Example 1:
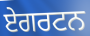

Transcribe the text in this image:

ਏਗਰਟਨ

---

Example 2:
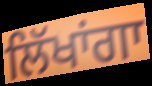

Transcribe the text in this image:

ਲਿੱਖਾਂਗਾ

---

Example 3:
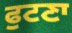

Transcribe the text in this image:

ਫੁਟਣਾ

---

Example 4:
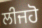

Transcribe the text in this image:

ਲੀਜਹੋ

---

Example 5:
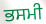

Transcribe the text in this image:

ਭਸਮੀ